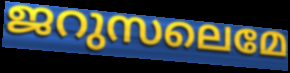
ജറുസലെമേ